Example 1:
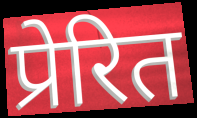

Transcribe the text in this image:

प्रेरित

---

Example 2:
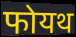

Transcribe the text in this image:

फोयथ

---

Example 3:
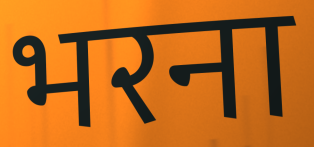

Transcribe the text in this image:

भरना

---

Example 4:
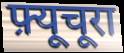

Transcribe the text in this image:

फ़्यूचूरा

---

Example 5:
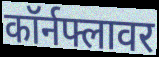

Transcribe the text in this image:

कॉर्नफ्लावर